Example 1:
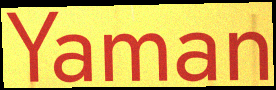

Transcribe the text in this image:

Yaman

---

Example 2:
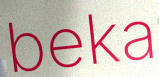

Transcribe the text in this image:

beka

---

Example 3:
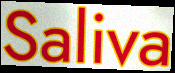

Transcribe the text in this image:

Saliva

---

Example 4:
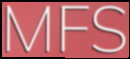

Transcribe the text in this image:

MFS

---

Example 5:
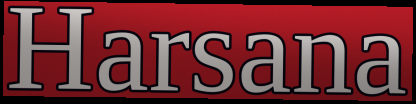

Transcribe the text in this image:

Harsana